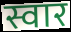
स्वार